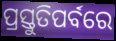
ପ୍ରସ୍ତୁତିପର୍ବରେ